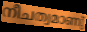
നീചത്വമാണു്